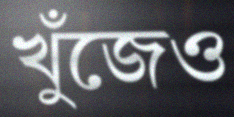
খুঁজেও